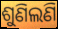
ଶୁଣିଲଣି